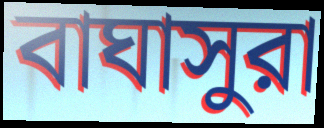
বাঘাসুরা